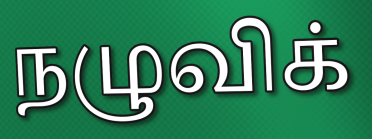
நழுவிக்